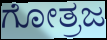
ಗೋತ್ರಜ